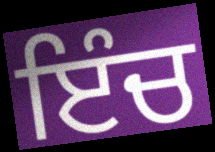
ਇੰਚ